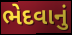
ભેદવાનું